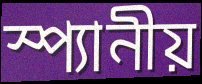
স্প্যানীয়